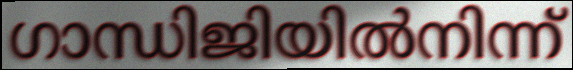
ഗാന്ധിജിയിൽനിന്ന്